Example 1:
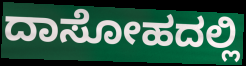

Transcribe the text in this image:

ದಾಸೋಹದಲ್ಲಿ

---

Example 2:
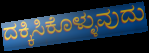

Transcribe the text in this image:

ದಕ್ಕಿಸಿಕೊಳ್ಳುವುದು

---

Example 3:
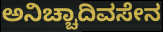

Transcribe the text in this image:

ಅನಿಚ್ಚಾದಿವಸೇನ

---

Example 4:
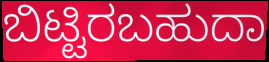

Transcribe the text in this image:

ಬಿಟ್ಟಿರಬಹುದಾ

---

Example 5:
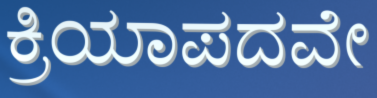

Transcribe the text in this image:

ಕ್ರಿಯಾಪದವೇ